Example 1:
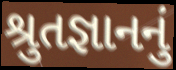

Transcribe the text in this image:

શ્રુતજ્ઞાનનું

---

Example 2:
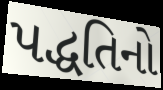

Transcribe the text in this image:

પદ્ધતિનો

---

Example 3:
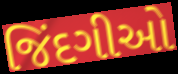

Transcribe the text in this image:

જિંદગીઓ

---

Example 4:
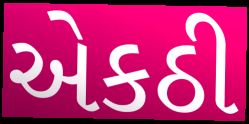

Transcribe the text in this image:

એકઠી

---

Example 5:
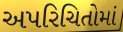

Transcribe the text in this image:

અપરિચિતોમાં